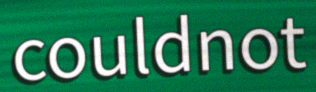
couldnot